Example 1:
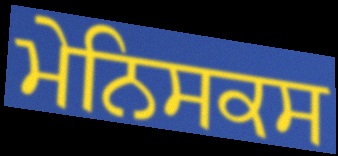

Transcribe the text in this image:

ਮੇਨਿਸਕਸ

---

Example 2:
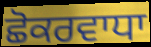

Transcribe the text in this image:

ਛੋਕਰਵਾਧਾ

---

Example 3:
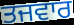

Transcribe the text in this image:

ਤਜਵਾਰ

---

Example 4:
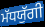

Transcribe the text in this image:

ਮੱਧਯੁੱਗੀ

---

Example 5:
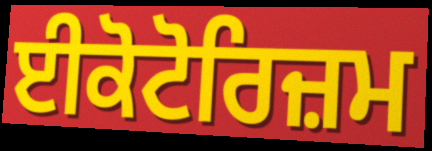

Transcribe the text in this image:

ਈਕੋਟੋਰਿਜ਼ਮ